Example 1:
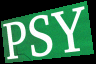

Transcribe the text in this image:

PSY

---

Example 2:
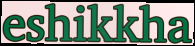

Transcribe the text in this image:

eshikkha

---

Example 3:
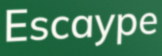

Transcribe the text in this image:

Escaype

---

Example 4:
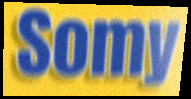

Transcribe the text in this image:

Somy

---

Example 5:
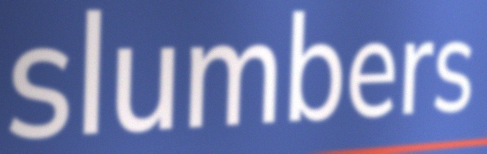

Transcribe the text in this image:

slumbers